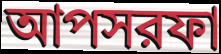
আপসরফা